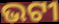
ଭଟୀ